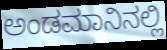
ಅಂಡಮಾನಿನಲ್ಲಿ